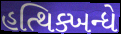
હત્થિક્ખન્ધે